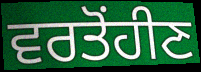
ਵਰਤੋਂਹੀਣ